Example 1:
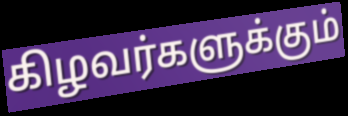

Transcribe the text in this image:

கிழவர்களுக்கும்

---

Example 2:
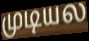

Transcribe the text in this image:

முடியல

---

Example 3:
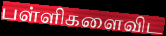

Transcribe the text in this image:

பள்ளிகளைவிட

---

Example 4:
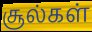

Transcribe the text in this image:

சூல்கள்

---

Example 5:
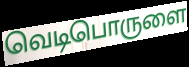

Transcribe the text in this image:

வெடிபொருளை